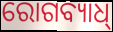
ରୋଗବ୍ୟାଧ୍